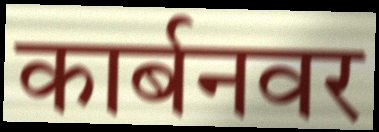
कार्बनवर